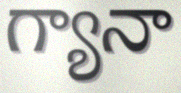
గ్యానా